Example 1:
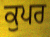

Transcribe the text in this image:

ਕੁਪਰ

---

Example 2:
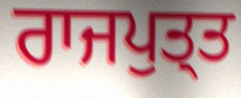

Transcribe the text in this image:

ਰਾਜਪੁਤ੍ਤ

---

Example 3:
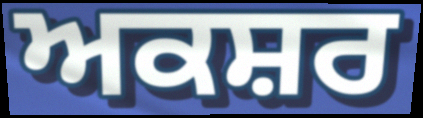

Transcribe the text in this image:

ਅਕਸ਼ਰ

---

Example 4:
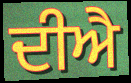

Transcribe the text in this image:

ਦੀਐ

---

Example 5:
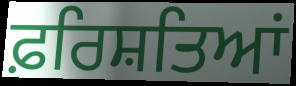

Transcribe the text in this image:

ਫ਼ਰਿਸ਼ਤਿਆਂ